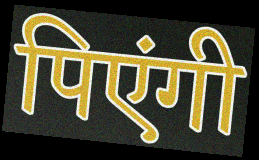
पिएंगी